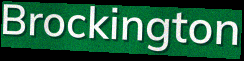
Brockington